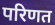
परिणत